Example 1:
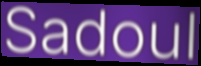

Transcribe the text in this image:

Sadoul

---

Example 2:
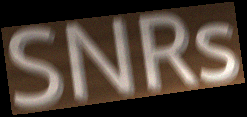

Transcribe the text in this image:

SNRs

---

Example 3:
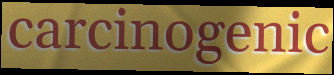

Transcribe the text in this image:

carcinogenic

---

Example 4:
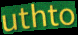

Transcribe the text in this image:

uthto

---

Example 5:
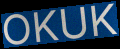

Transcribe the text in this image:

OKUK